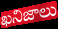
ఖనిజాలు